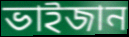
ভাইজান